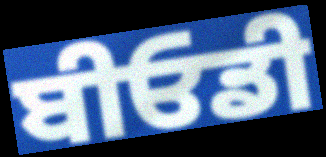
ਬੀਓਡੀ